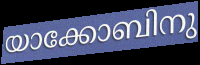
യാക്കോബിനു